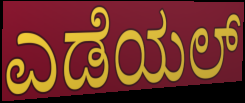
ಎಡೆಯಲ್